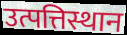
उत्पत्तिस्थान